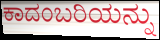
ಕಾದಂಬರಿಯನ್ನು